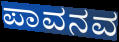
ಪಾವನವ